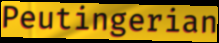
Peutingerian